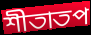
শীতাতপ